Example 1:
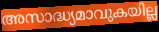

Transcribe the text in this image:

അസാദ്ധ്യമാവുകയില്ല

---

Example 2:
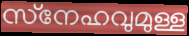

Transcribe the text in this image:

സ്‌നേഹവുമുള്ള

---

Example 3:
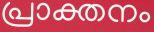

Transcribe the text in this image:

പ്രാക്തനം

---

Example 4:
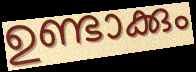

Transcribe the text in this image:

ഉണ്ടാക്കും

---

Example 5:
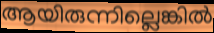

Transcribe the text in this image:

ആയിരുന്നില്ലെങ്കിൽ